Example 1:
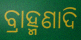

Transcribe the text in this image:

ବ୍ରାହ୍ମଣାଦି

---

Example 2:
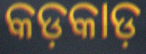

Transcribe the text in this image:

କଡ଼କାଡ଼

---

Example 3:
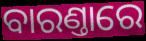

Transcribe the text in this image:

ବାରଣ୍ତାରେ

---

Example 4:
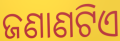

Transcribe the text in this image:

ଜଣାଣଟିଏ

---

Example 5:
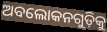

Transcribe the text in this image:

ଅବଲୋକନଗୁଡ଼ିକୁ